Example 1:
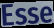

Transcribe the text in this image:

Esse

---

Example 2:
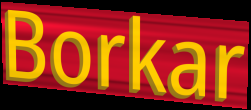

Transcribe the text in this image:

Borkar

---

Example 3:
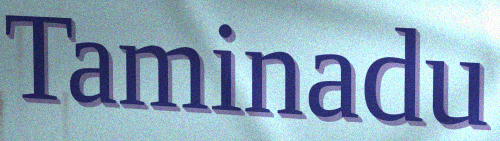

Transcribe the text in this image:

Taminadu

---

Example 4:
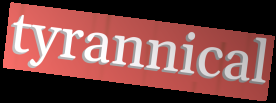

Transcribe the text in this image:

tyrannical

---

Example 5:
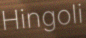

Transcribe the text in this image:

Hingoli